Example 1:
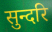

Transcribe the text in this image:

सुन्दरि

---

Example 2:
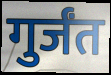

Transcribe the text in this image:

गुर्जंत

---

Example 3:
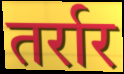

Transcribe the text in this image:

तर्रार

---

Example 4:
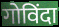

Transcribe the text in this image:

गोविंदा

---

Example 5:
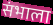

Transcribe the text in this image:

संभाला